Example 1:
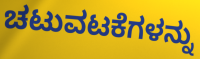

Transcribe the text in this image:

ಚಟುವಟಕೆಗಳನ್ನು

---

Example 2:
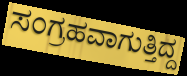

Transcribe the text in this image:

ಸಂಗ್ರಹವಾಗುತ್ತಿದ್ದ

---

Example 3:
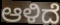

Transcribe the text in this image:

ಆಳಿದೆ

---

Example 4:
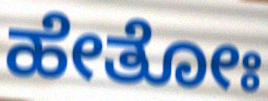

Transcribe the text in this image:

ಹೇತೋಃ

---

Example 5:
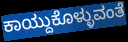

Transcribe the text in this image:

ಕಾಯ್ದುಕೊಳ್ಳುವಂತೆ